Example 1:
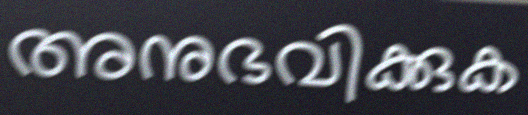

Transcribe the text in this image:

അനുഭവിക്കുക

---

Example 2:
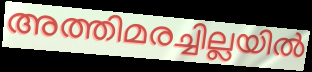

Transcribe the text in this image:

അത്തിമരച്ചില്ലയിൽ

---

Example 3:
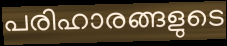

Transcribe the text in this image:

പരിഹാരങ്ങളുടെ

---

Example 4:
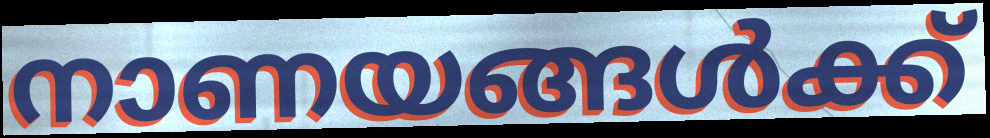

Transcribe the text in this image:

നാണയങ്ങൾക്ക്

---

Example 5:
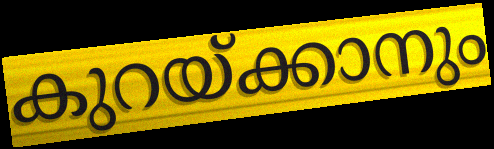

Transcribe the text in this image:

കുറയ്ക്കാനും